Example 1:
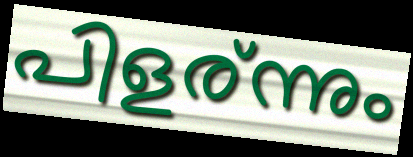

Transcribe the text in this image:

പിളര്ന്നും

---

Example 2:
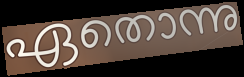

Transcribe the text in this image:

ഏതൊന്നു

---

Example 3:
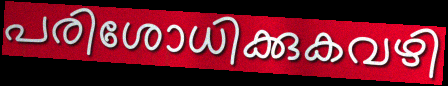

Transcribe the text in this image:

പരിശോധിക്കുകവഴി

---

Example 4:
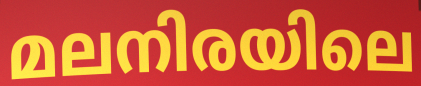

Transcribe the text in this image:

മലനിരയിലെ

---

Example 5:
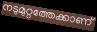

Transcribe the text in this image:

നടുമുറ്റത്തേക്കാണ്